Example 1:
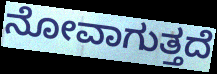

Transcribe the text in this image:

ನೋವಾಗುತ್ತದೆ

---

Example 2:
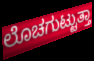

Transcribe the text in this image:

ಲೊಚಗುಟ್ಟುತ್ತಾ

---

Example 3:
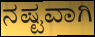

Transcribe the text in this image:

ನಷ್ಟವಾಗಿ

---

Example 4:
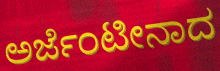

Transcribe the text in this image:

ಅರ್ಜೆಂಟೀನಾದ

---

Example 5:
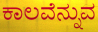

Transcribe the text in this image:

ಕಾಲವೆನ್ನುವ